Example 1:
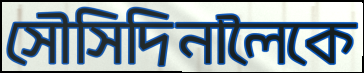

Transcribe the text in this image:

সৌসিদিনালৈকে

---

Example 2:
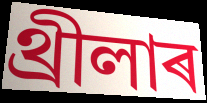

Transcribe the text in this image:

থ্ৰীলাৰ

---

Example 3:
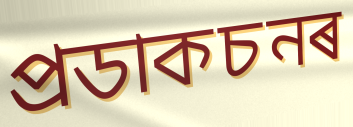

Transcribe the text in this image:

প্ৰডাকচনৰ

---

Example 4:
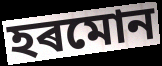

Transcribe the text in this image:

হৰমোন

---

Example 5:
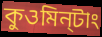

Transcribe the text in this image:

কুওমিন্‌টাং